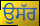
ਉਸੱਰ